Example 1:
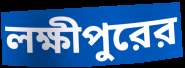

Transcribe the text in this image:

লক্ষীপুরের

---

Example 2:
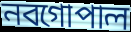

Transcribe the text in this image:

নবগোপাল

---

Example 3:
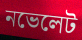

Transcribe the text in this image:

নভেলেট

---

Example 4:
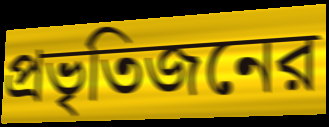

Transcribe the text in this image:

প্রভৃতিজনের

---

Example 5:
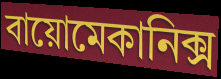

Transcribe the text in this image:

বায়োমেকানিক্স